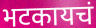
भटकायचं